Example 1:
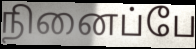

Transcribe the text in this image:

நினைப்பே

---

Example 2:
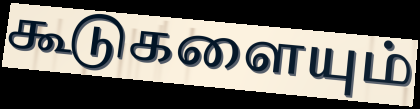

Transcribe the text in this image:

கூடுகளையும்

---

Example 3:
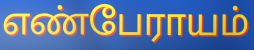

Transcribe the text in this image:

எண்பேராயம்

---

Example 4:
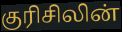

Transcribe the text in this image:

குரிசிலின்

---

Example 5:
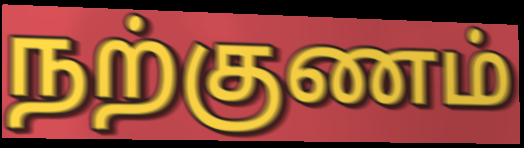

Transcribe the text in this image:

நற்குணம்